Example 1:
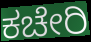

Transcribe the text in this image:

ಕಚೇರಿ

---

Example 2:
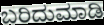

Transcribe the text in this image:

ಬರಿದುಮಾಡಿ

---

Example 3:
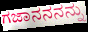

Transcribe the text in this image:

ಗಜಾನನನನ್ನು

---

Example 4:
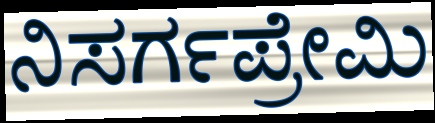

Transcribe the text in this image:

ನಿಸರ್ಗಪ್ರೇಮಿ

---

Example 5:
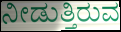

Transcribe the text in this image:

ನೀಡುತ್ತಿರುವ